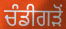
ਚੰਡੀਗੜੋਂ